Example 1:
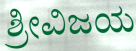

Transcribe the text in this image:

ಶ್ರೀವಿಜಯ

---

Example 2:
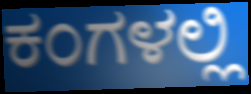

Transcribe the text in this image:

ಕಂಗಳಲ್ಲಿ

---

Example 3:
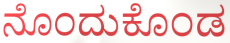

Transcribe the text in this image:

ನೊಂದುಕೊಂಡ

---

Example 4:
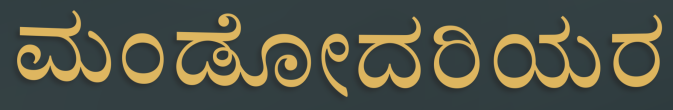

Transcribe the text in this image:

ಮಂಡೋದರಿಯರ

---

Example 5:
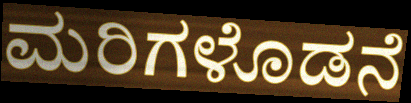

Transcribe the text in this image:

ಮರಿಗಳೊಡನೆ